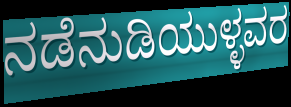
ನಡೆನುಡಿಯುಳ್ಳವರ